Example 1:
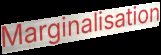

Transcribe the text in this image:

Marginalisation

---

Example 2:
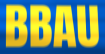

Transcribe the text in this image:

BBAU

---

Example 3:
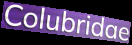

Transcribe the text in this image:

Colubridae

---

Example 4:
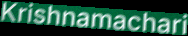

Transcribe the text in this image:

Krishnamachari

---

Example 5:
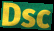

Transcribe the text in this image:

Dsc